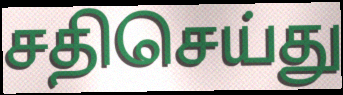
சதிசெய்து